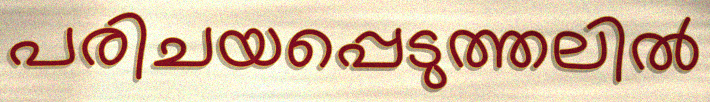
പരിചയപ്പെടുത്തലിൽ